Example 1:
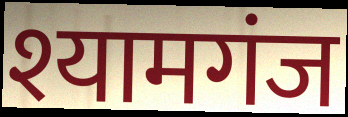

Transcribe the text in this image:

श्यामगंज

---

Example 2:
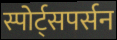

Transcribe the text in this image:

स्पोर्ट्सपर्सन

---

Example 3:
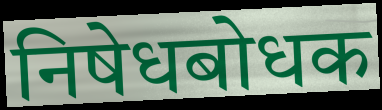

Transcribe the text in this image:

निषेधबोधक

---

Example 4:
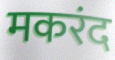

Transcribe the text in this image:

मकरंद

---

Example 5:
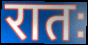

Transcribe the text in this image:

रातः